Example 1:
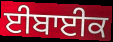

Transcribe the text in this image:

ਈਬਾਈਕ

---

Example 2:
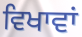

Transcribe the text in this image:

ਵਿਖਾਵਾਂ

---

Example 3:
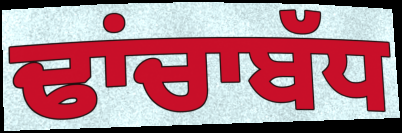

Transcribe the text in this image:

ਢਾਂਚਾਬੱਧ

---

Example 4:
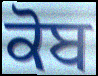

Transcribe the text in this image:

ਕੋਬ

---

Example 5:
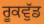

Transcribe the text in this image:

ਰੂਕਵੁੱਡ